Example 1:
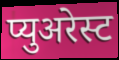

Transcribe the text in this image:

प्युअरेस्ट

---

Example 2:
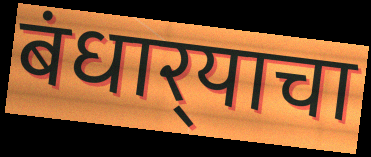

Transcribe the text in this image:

बंधार्‍याचा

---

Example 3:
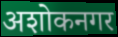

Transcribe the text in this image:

अशोकनगर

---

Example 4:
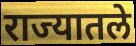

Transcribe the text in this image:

राज्यातले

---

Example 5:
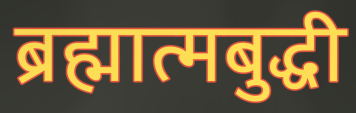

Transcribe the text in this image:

ब्रह्मात्मबुद्धी